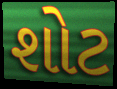
શોટ